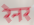
रेनर